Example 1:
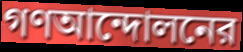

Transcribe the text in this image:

গণআন্দোলনের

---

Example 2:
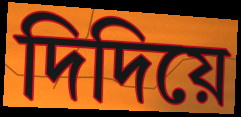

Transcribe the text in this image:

দিদিয়ে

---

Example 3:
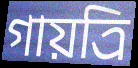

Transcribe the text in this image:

গায়ত্রি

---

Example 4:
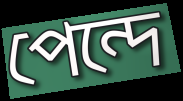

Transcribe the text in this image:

পেন্দে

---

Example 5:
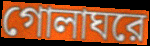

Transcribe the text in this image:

গোলাঘরে